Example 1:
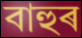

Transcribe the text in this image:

বাহুৰ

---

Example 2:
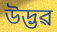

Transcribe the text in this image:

উদ্ভৱ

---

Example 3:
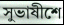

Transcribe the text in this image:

সুভাষীশে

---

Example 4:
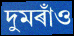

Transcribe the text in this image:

দুমৰাঁও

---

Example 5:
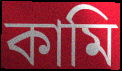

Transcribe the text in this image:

কামি